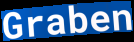
Graben